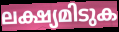
ലക്ഷ്യമിടുക